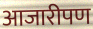
आजारीपण